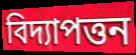
বিদ্যাপত্তন